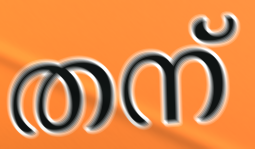
തന്